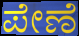
ಪೇಣೆ